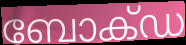
ബോക്ഡ